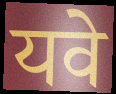
यवे